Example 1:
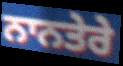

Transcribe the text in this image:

ਨਾਨਤੇਰੇ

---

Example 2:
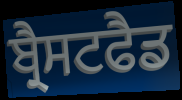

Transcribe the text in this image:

ਬ੍ਰੈਸਟਫੈਡ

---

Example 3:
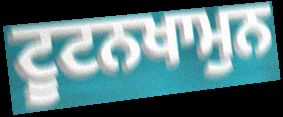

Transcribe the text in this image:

ਟੂਟਨਖਾਮੁਨ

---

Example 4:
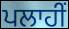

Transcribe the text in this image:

ਪਲਾਹੀਂ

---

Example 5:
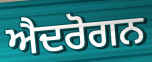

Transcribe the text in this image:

ਐਦਰੋਗਨ